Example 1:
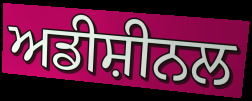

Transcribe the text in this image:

ਅਡੀਸ਼ੀਨਲ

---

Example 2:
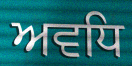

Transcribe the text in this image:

ਅਵਧਿ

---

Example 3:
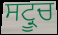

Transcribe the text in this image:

ਸਟ੍ਰੂਚ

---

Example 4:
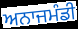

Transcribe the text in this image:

ਅਨਾਜਮੰਡੀ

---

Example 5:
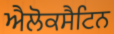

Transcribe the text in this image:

ਐਲੋਕਸੈਟਿਨ